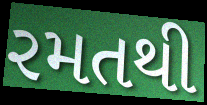
રમતથી